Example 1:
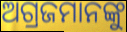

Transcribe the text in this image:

ଅଗ୍ରଜମାନଙ୍କୁ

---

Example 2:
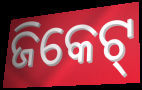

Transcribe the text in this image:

ଜିକେଟ୍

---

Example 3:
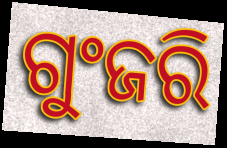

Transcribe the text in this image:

ଗୁଂଜରି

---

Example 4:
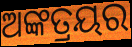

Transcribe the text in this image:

ଅଙ୍କତ୍ରୟର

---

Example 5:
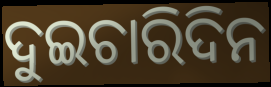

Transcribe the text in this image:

ଦୁଇଚାରିଦିନ